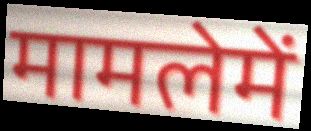
मामलेमें